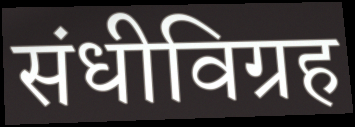
संधीविग्रह